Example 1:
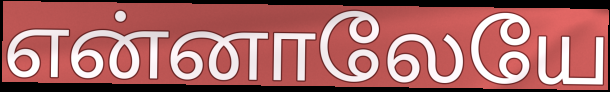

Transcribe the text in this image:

என்னாலேயே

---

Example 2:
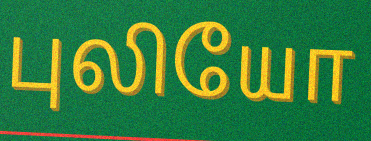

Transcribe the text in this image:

புலியோ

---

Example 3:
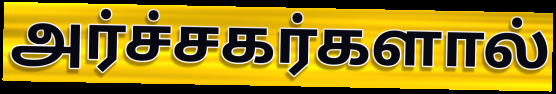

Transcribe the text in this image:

அர்ச்சகர்களால்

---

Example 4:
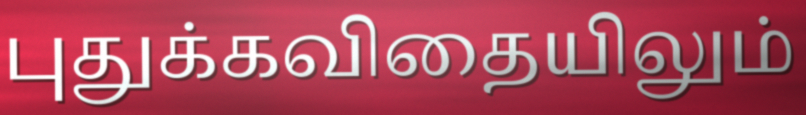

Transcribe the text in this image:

புதுக்கவிதையிலும்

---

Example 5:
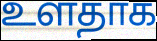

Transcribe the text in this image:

உளதாக